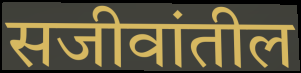
सजीवांतील